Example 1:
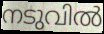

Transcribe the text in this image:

നടുവിൽ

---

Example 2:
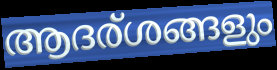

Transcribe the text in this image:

ആദര്ശങ്ങളും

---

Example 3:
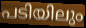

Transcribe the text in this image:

പടിയിലും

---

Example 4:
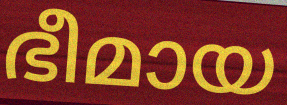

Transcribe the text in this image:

ഭീമായ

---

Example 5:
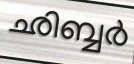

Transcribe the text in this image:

ഛിബ്ബർ